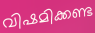
വിഷമിക്കണ്ട